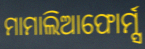
ମାମାଲିଆଫୋର୍ମ୍ସ